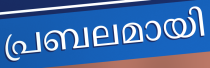
പ്രബലമായി